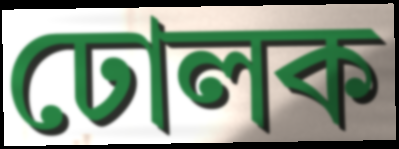
ঢোলক